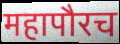
महापौरच